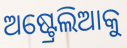
ଅଷ୍ଟ୍ରେଲିଆକୁ